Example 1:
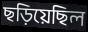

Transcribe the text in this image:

ছড়িয়েছিল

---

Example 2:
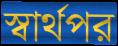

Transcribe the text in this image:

স্বার্থপর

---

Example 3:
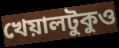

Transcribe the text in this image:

খেয়ালটুকুও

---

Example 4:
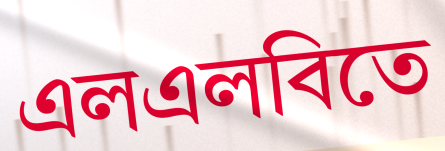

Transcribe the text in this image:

এলএলবিতে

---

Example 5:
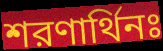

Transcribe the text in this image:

শরণার্থিনঃ